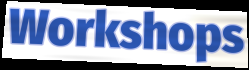
Workshops